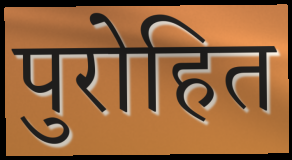
पुरोहित